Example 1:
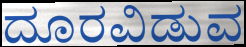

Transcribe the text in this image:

ದೂರವಿಡುವ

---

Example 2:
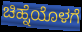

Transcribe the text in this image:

ಚಿಹ್ನೆಯೊಳಗೆ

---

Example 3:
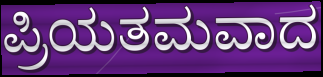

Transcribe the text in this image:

ಪ್ರಿಯತಮವಾದ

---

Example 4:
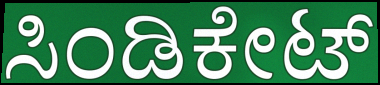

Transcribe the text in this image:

ಸಿಂಡಿಕೇಟ್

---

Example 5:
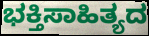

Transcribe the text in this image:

ಭಕ್ತಿಸಾಹಿತ್ಯದ